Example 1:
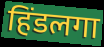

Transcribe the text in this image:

हिंडलगा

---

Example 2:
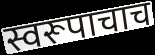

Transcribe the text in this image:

स्वरूपाचाच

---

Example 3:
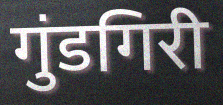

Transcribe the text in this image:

गुंडगिरी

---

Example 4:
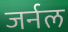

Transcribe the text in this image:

जर्नल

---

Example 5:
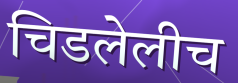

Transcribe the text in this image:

चिडलेलीच